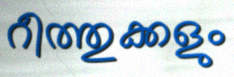
റീത്തുക്കളും